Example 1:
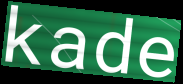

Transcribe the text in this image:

kade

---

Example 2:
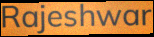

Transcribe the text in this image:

Rajeshwar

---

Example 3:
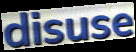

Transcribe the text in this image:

disuse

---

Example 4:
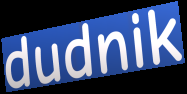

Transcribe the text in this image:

dudnik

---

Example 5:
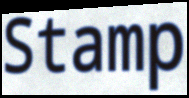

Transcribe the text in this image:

Stamp